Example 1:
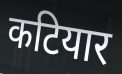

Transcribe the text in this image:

कटियार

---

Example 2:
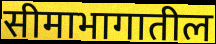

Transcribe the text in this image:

सीमाभागातील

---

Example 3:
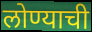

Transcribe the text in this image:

लोण्याची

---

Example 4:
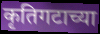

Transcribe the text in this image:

कृतिगटाच्या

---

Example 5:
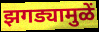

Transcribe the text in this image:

झगड्यामुळें